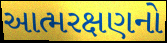
આત્મરક્ષણનો